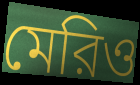
মেরিও